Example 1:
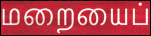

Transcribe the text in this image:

மறையைப்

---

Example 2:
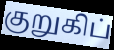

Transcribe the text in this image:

குறுகிப்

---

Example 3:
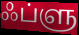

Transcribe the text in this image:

ஃப்ளு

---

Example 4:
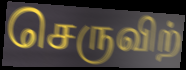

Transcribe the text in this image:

செருவிற்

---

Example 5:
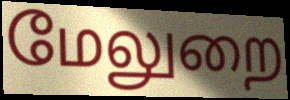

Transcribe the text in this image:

மேலுறை